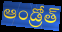
ఆండ్రోత్